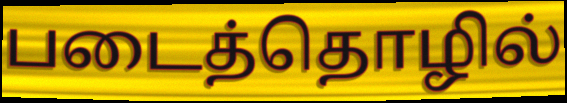
படைத்தொழில்